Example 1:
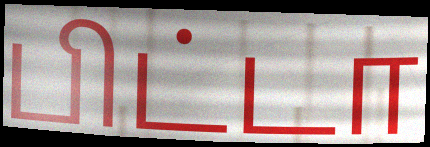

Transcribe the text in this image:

பிட்டா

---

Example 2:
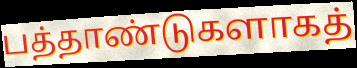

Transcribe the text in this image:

பத்தாண்டுகளாகத்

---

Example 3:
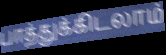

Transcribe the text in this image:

பாத்துக்கிடலாம்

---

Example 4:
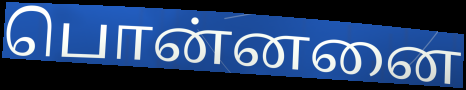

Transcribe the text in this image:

பொன்னனை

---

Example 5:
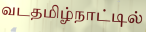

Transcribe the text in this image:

வடதமிழ்நாட்டில்